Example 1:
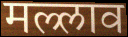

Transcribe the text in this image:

मल्लाव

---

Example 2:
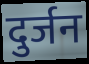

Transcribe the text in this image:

दुर्जन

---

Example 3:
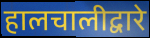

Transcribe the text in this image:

हालचालीद्वारे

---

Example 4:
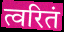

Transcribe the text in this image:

त्वरितं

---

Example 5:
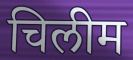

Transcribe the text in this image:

चिलीम